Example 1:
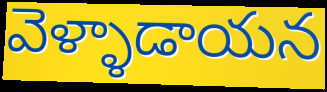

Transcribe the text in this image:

వెళ్ళాడాయన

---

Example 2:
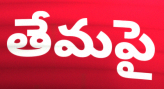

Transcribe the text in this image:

తేమపై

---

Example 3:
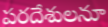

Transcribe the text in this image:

పరదేశులనూ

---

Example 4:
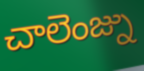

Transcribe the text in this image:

చాలెంజ్ను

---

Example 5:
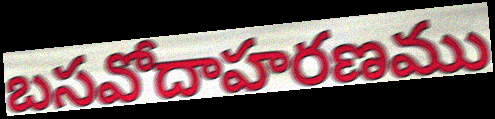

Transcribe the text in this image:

బసవోదాహరణము